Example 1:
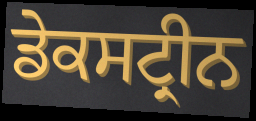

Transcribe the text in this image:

ਡੇਕਸਟ੍ਰੀਨ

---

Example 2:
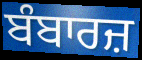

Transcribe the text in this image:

ਬੰਬਾਰਜ਼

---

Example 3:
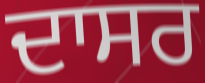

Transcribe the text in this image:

ਦਾਸਰ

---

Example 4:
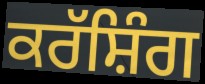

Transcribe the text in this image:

ਕਰੱਸ਼ਿੰਗ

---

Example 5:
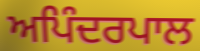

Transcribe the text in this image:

ਅਪਿੰਦਰਪਾਲ